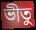
ভীতু